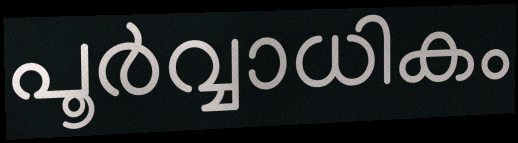
പൂർവ്വാധികം